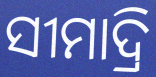
ସୀମାଦ୍ରି